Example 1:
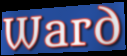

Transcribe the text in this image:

Ward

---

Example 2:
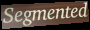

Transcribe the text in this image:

Segmented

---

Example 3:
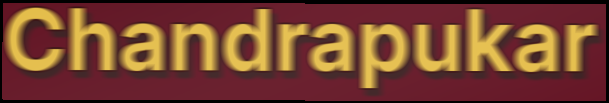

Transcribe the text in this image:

Chandrapukar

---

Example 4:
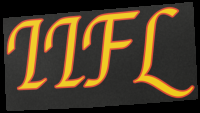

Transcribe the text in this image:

IIFL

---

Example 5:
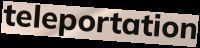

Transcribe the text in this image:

teleportation